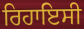
ਰਿਹਾਇਸੀ